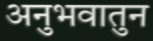
अनुभवातुन